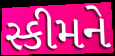
સ્કીમને